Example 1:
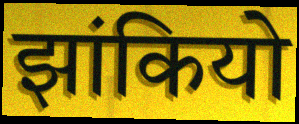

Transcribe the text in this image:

झांकियो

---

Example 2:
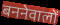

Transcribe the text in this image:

बननेवालों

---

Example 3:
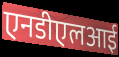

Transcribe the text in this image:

एनडीएलआई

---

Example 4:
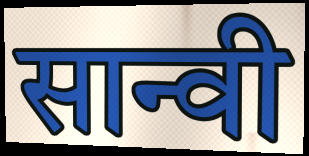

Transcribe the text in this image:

सान्वी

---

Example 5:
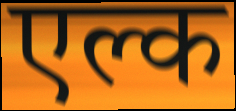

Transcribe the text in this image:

एल्क